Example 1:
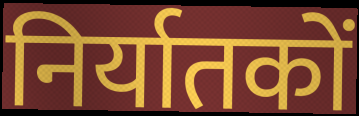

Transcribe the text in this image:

निर्यातकों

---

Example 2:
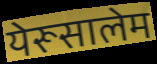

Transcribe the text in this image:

येरूसालेम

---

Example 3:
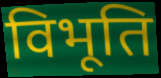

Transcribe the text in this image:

विभूति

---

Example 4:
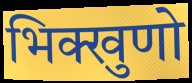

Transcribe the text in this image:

भिक्खुणो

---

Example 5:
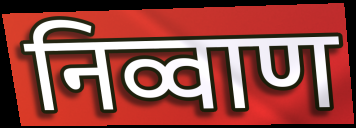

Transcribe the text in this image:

निव्वाण